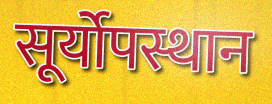
सूर्योपस्थान